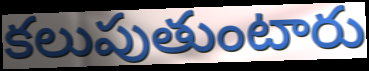
కలుపుతుంటారు